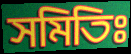
সমিতিঃ